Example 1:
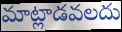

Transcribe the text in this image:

మాట్లాడవలదు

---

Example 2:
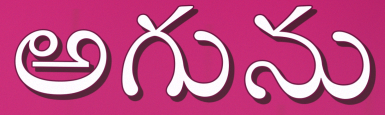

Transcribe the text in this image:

అగును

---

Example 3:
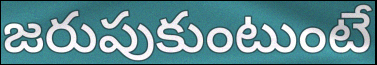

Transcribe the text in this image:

జరుపుకుంటుంటే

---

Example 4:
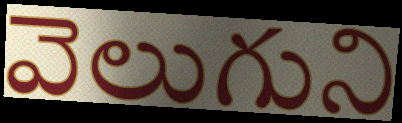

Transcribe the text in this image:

వెలుగుని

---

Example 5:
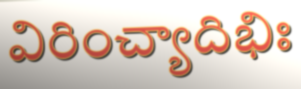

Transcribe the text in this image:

విరించ్యాదిభిః